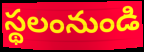
స్థలంనుండి